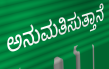
ಅನುಮತಿಸುತ್ತಾನೆ